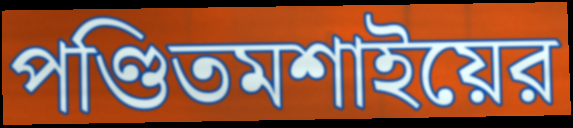
পণ্ডিতমশাইয়ের